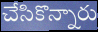
చేసికొన్నారు